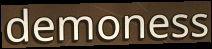
demoness